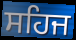
ਸਹਿਜ